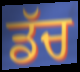
ਡੱਚ